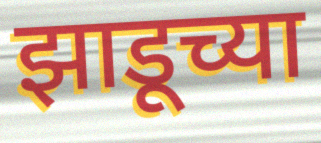
झाडूच्या